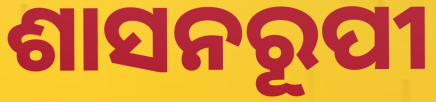
ଶାସନରୂପୀ